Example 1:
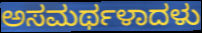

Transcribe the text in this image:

ಅಸಮರ್ಥಳಾದಳು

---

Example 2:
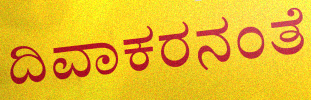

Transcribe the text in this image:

ದಿವಾಕರನಂತೆ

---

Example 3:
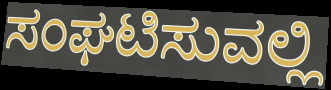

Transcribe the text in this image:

ಸಂಘಟಿಸುವಲ್ಲಿ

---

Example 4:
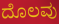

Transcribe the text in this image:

ದೊಲವು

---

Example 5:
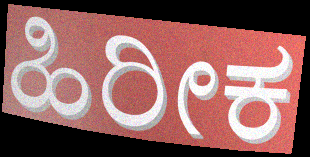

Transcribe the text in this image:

ಹಿರೀಕ